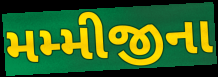
મમ્મીજીના